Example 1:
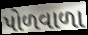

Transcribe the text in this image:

પોળવાળા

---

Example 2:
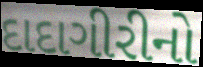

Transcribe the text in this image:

દાદાગીરીનો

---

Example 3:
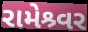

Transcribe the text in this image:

રામેશ્ર્વર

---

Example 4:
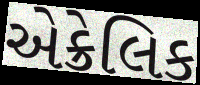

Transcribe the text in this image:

એક્રેલિક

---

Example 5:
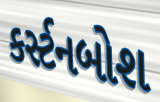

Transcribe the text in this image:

કર્સ્ટનબોશ